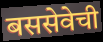
बससेवेची